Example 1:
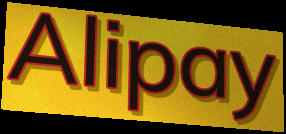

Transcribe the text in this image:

Alipay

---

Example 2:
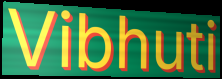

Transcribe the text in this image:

Vibhuti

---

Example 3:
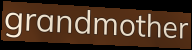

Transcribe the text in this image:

grandmother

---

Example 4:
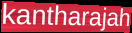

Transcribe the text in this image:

kantharajah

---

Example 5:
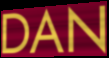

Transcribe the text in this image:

DAN